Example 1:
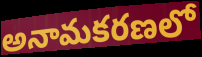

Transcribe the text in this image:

అనామకరణలో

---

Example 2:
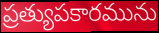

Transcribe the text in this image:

ప్రత్యుపకారమును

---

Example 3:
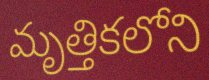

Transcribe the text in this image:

మృత్తికలోని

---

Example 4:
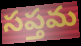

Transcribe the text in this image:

సప్తమ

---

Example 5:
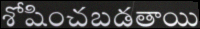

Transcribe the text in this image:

శోషించబడతాయి